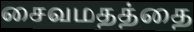
சைவமதத்தை